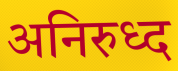
अनिरुध्द